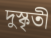
দুস্কৃতী